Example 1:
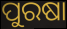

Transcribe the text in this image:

ପୁରଷା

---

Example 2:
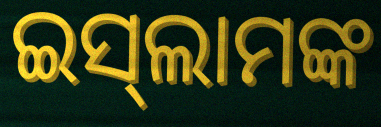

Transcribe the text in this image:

ଇସ୍‌ଲାମଙ୍କ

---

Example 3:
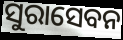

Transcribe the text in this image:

ସୁରାସେବନ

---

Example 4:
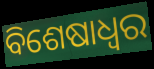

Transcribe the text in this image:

ବିଶେଷାଧ୍ଵର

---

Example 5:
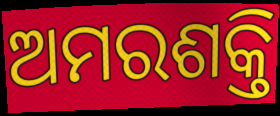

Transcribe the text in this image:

ଅମରଶକ୍ତି